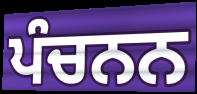
ਪੰਚਨਨ